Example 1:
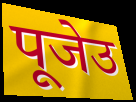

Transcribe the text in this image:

पूजेउ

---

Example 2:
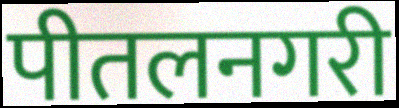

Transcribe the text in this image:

पीतलनगरी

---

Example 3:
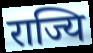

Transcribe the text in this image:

राज्यि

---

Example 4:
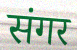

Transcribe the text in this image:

संगर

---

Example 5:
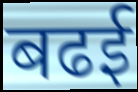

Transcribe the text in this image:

बढई